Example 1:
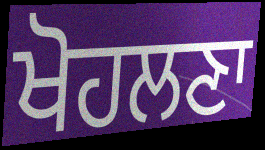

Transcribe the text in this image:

ਖੋਹਲਣਾ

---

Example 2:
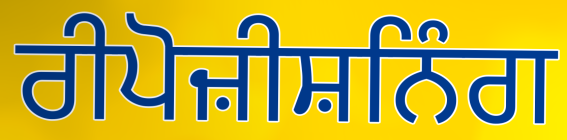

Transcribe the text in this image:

ਰੀਪੋਜ਼ੀਸ਼ਨਿੰਗ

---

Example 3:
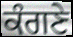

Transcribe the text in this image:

ਕੰਗਣੇ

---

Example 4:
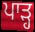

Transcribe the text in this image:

ਪਾੜ੍ਹ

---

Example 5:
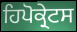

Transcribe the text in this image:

ਹਿਪੋਕ੍ਰੇਟਸ